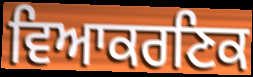
ਵਿਆਕਰਣਿਕ